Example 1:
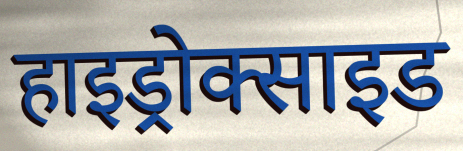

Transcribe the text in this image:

हाइड्रोक्साइड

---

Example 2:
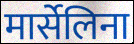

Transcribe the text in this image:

मार्सेलिना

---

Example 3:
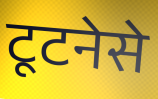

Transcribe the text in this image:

टूटनेसे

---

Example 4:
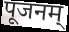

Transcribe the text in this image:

पूजनम्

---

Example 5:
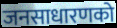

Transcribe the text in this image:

जनसाधारणको